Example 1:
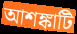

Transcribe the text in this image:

আশঙ্কাটি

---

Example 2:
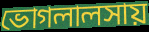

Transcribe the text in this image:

ভোগলালসায়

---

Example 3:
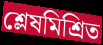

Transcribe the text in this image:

শ্লেষমিশ্রিত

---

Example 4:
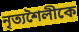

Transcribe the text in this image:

নৃত্যশৈলীকে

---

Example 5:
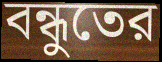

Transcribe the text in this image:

বন্ধুতের